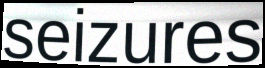
seizures